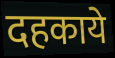
दहकाये